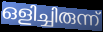
ഒളിച്ചിരുന്ന്